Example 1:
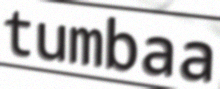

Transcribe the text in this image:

tumbaa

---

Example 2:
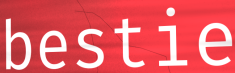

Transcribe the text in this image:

bestie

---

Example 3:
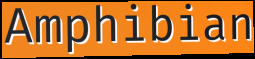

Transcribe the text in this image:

Amphibian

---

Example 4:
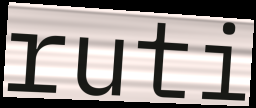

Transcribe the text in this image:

ruti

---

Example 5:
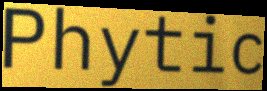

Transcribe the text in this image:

Phytic